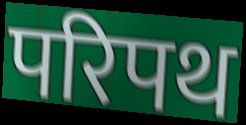
परिपथ